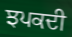
ਝਪਕਦੀ